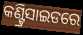
କଣ୍ଟ୍ରିସାଇଡରେ